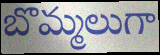
బొమ్మలుగా